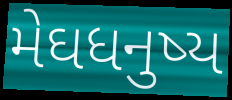
મેઘધનુષ્ય